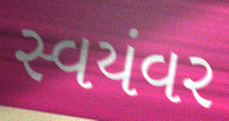
સ્વયંવર